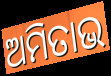
ଅମିତାଭ